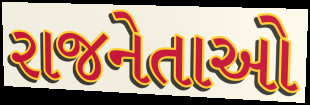
રાજનેતાઓ